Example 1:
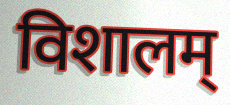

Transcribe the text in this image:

विशालम्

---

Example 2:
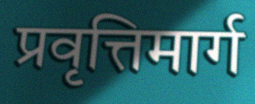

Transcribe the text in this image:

प्रवृत्तिमार्ग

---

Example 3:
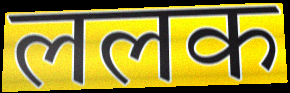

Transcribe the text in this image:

ललक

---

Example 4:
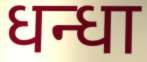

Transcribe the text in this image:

धन्धा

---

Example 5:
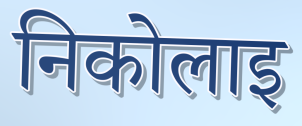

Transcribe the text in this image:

निकोलाइ